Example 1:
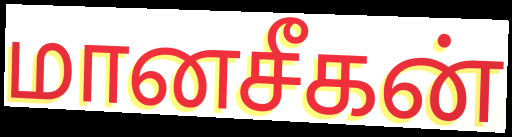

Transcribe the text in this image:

மானசீகன்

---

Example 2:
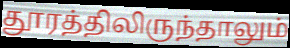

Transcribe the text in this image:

தூரத்திலிருந்தாலும்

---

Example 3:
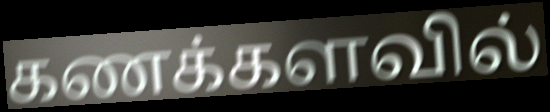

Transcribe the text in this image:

கணக்களவில்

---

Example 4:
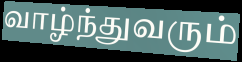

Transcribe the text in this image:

வாழ்ந்துவரும்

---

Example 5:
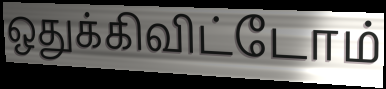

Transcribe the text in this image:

ஒதுக்கிவிட்டோம்